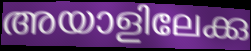
അയാളിലേക്കു